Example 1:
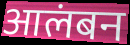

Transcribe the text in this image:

आलंबन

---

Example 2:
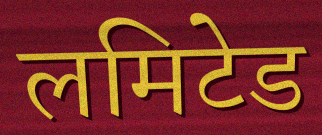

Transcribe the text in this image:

लमिटेड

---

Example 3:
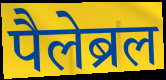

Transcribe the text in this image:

पैलेब्रल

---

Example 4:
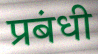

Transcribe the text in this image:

प्रबंधी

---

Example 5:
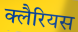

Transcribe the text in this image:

क्लैरियस